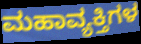
ಮಹಾವ್ಯಕ್ತಿಗಳ